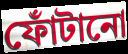
ফোঁটানো